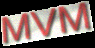
MVM